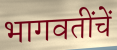
भागवतींचें